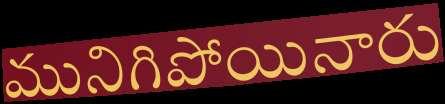
మునిగిపోయినారు